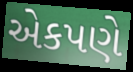
એકપણે